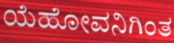
ಯೆಹೋವನಿಗಿಂತ